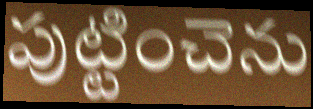
పుట్టించెను